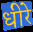
धीरे